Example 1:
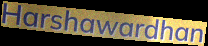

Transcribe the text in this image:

Harshawardhan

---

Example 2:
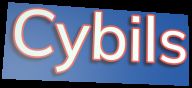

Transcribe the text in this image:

Cybils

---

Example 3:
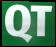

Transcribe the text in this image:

QT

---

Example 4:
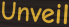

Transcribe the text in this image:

Unveil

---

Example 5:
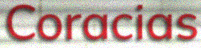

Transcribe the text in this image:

Coracias